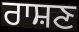
ਰਾਸ਼ਣ